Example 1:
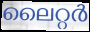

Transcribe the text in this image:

ലൈറ്റർ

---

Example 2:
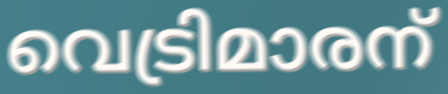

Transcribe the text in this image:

വെട്രിമാരന്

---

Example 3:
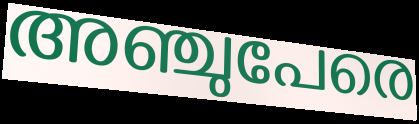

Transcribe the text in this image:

അഞ്ചുപേരെ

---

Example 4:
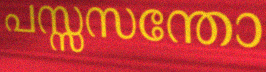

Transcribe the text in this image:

പസ്സസന്തോ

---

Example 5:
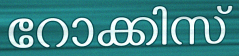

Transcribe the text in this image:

റോക്കിസ്